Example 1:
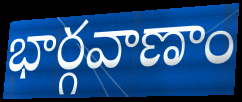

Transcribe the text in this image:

భార్గవాణాం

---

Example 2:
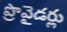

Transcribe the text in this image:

ప్రొవైడర్లు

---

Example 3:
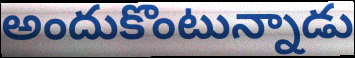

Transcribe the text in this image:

అందుకొంటున్నాడు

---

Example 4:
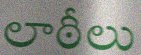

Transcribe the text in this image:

లాఠీలు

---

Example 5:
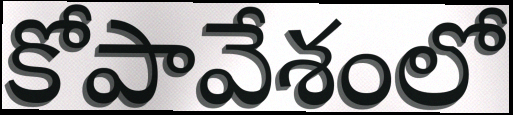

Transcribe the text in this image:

కోపావేశంలో